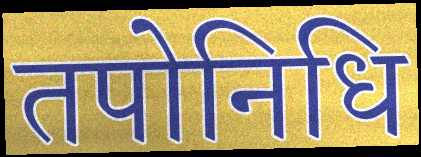
तपोनिधि